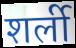
शर्ली